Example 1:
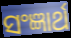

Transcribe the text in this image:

ସଂଜ୍ଞାର୍ଥ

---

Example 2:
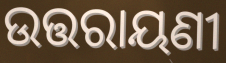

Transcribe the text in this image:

ଉତ୍ତରାୟଣୀ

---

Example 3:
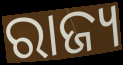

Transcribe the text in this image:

ରାଜ୍ୟ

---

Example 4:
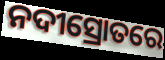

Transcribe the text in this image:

ନଦୀସ୍ରୋତରେ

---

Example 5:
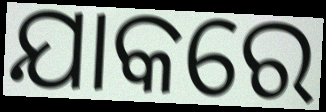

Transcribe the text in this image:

ଯାକରେ